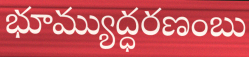
భూమ్యుద్ధరణంబు